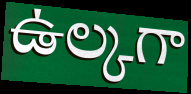
ఉల్కగా